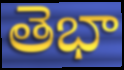
తెభా